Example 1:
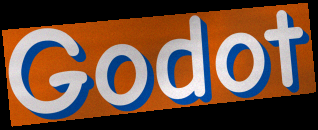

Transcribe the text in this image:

Godot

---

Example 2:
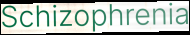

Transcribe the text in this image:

Schizophrenia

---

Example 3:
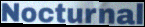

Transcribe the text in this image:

Nocturnal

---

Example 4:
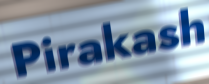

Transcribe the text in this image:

Pirakash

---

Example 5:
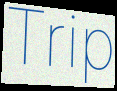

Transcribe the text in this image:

Trip